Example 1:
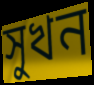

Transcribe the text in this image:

সুখন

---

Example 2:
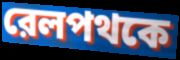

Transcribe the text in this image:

রেলপথকে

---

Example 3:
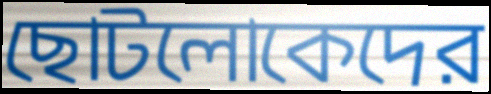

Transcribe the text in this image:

ছোটলোকেদের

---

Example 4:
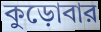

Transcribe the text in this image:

কুড়োবার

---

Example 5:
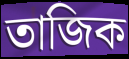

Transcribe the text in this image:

তাজিক